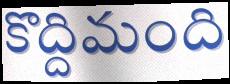
కొద్దిమంది